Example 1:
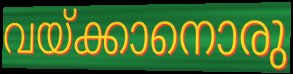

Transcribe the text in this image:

വയ്ക്കാനൊരു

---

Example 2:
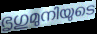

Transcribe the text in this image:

ഭൃഗുമുനിയുടെ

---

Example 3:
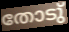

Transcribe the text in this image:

തോടു്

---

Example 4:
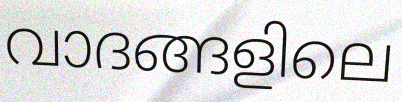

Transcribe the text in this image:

വാദങ്ങളിലെ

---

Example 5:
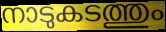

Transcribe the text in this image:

നാടുകടത്തും